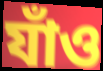
যাঁও